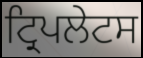
ਟ੍ਰਿਪਲੇਟਸ